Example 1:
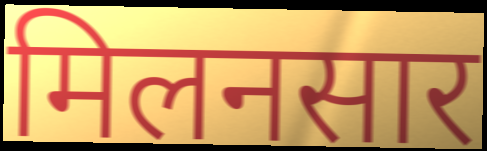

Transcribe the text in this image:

मिलनसार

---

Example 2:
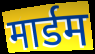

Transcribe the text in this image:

मार्डम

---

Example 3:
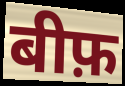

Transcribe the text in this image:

बीफ़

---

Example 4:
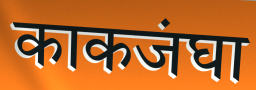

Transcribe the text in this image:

काकजंघा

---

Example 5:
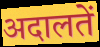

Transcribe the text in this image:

अदालतें